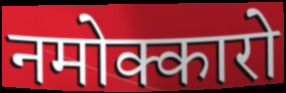
नमोक्कारो